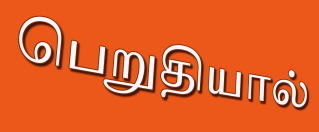
பெறுதியால்